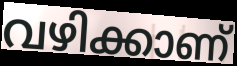
വഴിക്കാണ്